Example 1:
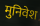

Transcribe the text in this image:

मुनिवेश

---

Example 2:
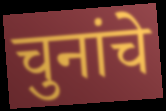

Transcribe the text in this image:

चुनांचे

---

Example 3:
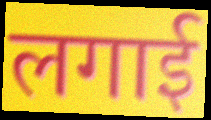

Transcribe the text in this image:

लगाई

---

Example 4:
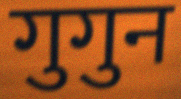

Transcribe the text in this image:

गुगुन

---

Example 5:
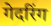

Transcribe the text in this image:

गेदरिंग